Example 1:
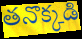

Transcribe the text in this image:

తనొక్కడి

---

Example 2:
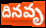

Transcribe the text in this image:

దినవృ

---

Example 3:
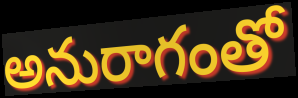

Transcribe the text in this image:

అనురాగంతో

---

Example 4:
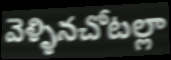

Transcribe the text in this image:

వెళ్ళినచోటల్లా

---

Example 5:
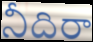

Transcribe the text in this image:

నీదిరా